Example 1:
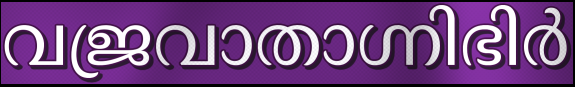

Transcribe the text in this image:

വജ്രവാതാഗ്നിഭിർ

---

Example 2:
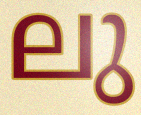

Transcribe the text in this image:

ലു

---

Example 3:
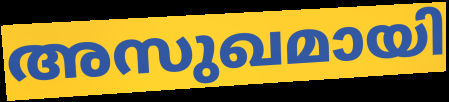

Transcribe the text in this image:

അസുഖമായി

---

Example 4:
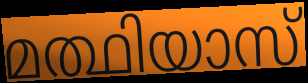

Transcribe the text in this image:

മത്ഥിയാസ്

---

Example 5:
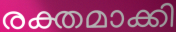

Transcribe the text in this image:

രക്തമാക്കി